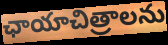
ఛాయాచిత్రాలను